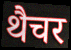
थैचर